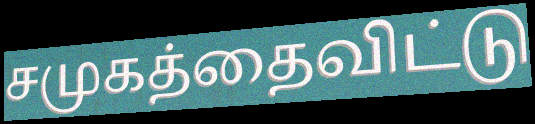
சமுகத்தைவிட்டு